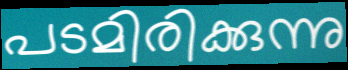
പടമിരിക്കുന്നു